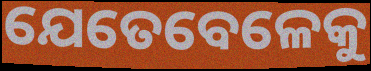
ଯେତେବେଳେକୁ